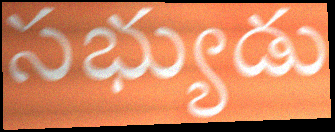
సభ్యుడు